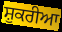
ਸ਼ੁਕਰੀਆ